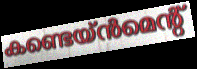
കണ്ടെയ്ൻമെന്റ്